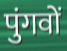
पुंगवों